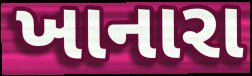
ખાનારા